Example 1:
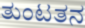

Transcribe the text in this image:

ತುಂಟತನ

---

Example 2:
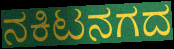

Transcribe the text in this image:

ನಕಿಟನಗದ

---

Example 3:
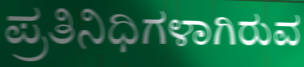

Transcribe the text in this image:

ಪ್ರತಿನಿಧಿಗಳಾಗಿರುವ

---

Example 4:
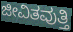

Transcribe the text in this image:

ಜೀವಿತವುತ್ತಿ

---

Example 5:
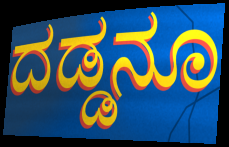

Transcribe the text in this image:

ದಡ್ಡನೂ